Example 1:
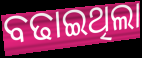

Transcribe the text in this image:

ବଢାଇଥିଲା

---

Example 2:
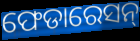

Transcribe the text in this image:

ଫେଡାରେସନ୍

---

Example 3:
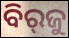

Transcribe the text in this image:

ବିର୍‌ଜୁ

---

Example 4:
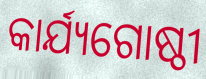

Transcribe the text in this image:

କାର୍ଯ୍ୟଗୋଷ୍ଠୀ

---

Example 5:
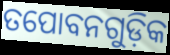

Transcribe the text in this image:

ତପୋବନଗୁଡ଼ିକ